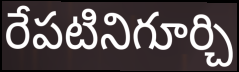
రేపటినిగూర్చి